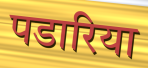
पडारिया